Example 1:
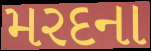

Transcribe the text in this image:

મરદના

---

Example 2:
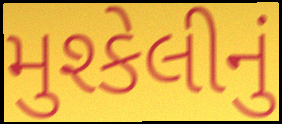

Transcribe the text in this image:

મુશ્કેલીનું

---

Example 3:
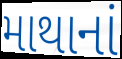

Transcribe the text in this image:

માથાનાં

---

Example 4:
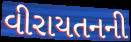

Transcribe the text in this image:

વીરાયતનની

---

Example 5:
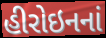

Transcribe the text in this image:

હીરોઇનનાં